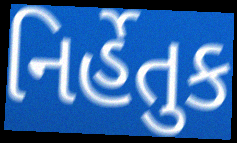
નિર્હેતુક